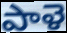
పాళె